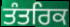
ਤੰਤਰਿਕ